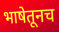
भाषेतूनच